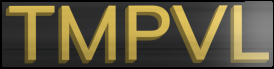
TMPVL